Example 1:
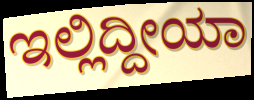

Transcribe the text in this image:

ಇಲ್ಲಿದ್ದೀಯಾ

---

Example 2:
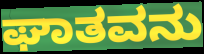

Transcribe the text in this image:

ಘಾತವನು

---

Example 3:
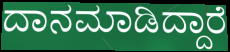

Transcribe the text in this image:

ದಾನಮಾಡಿದ್ದಾರೆ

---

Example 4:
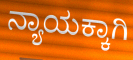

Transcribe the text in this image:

ನ್ಯಾಯಕ್ಕಾಗಿ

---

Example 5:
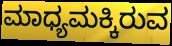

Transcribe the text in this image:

ಮಾಧ್ಯಮಕ್ಕಿರುವ